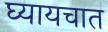
घ्यायचात